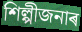
শিল্পীজনাৰ